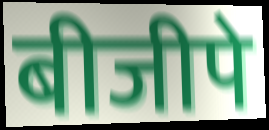
बीजीपे